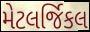
મેટલર્જિકલ